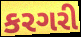
કરગરી